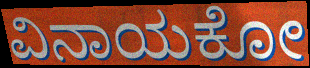
ವಿನಾಯಕೋ